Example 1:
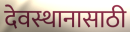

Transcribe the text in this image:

देवस्थानासाठी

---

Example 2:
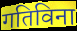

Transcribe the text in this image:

गतिविना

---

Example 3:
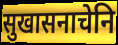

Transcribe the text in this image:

सुखासनाचेनि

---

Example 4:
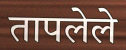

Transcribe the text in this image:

तापलेले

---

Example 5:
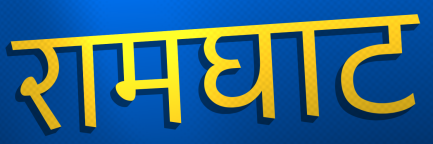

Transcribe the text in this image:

रामघाट